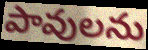
పావులను